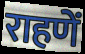
राहणें